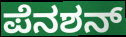
ಪೆನಶನ್